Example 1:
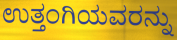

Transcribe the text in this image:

ಉತ್ತಂಗಿಯವರನ್ನು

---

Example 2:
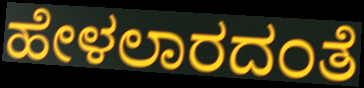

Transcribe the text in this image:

ಹೇಳಲಾರದಂತೆ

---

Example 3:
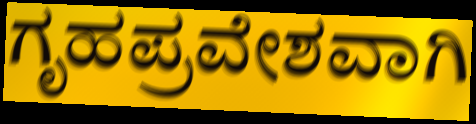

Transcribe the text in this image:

ಗೃಹಪ್ರವೇಶವಾಗಿ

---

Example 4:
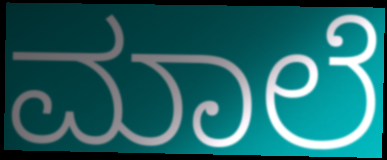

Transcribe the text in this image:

ಮಾಲೆ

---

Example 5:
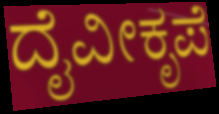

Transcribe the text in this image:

ದೈವೀಕೃಪೆ